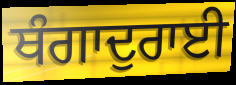
ਥੰਗਾਦੁਰਾਈ